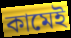
কামেই